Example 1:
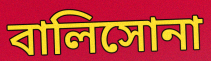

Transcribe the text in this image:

বালিসোনা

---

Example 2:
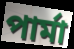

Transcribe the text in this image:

পার্মা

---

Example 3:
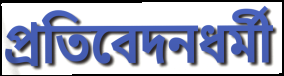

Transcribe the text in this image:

প্রতিবেদনধর্মী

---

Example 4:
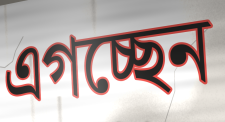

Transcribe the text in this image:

এগচ্ছেন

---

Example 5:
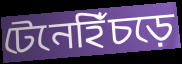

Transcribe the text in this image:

টেনেহিঁচড়ে